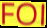
FOI